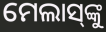
ମେଲାସ୍‌ଙ୍କୁ